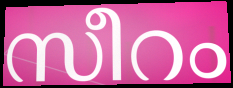
സീറം